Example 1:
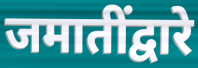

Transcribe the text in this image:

जमातींद्वारे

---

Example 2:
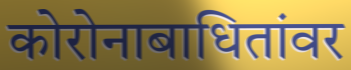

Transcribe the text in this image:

कोरोनाबाधितांवर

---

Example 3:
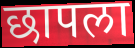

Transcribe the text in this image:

छापला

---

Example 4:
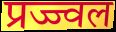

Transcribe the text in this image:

प्रज्ज्वल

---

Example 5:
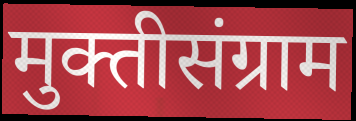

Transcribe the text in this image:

मुक्तीसंग्राम